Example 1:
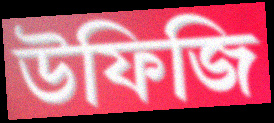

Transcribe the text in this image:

উফিজি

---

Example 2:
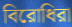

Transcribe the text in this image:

বিরোধিরা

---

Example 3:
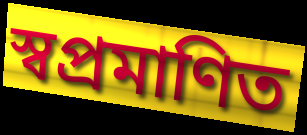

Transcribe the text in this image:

স্বপ্রমাণিত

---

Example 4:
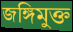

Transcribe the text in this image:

জঙ্গিমুক্ত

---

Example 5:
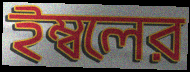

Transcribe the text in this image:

ইম্বলের